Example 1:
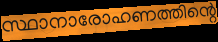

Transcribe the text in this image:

സ്ഥാനാരോഹണത്തിന്റെ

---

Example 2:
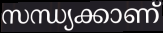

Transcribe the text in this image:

സന്ധ്യക്കാണ്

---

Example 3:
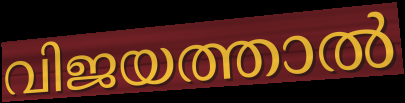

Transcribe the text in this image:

വിജയത്താൽ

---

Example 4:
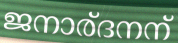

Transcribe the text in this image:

ജനാര്ദനന്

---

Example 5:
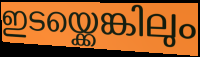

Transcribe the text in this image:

ഇടയ്ക്കെങ്കിലും